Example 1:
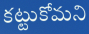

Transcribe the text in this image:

కట్టుకోమని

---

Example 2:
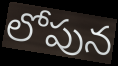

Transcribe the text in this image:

లోపున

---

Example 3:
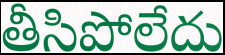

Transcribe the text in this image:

తీసిపోలేదు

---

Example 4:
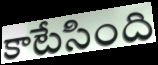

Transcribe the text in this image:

కాటేసింది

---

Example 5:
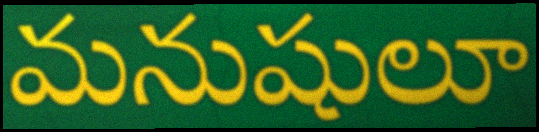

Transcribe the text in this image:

మనుషులూ